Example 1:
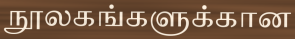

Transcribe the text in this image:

நூலகங்களுக்கான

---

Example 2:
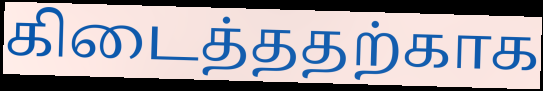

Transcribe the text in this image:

கிடைத்ததற்காக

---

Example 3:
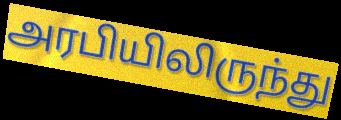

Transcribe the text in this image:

அரபியிலிருந்து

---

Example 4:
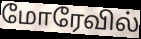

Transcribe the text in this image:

மோரேவில்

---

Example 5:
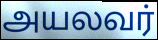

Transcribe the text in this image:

அயலவர்